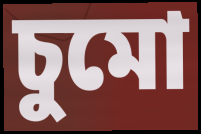
চুমো